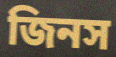
জিনস